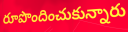
రూపొందించుకున్నారు